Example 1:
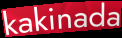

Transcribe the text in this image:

kakinada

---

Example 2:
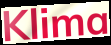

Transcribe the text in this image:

Klima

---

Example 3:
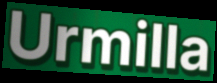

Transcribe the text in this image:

Urmilla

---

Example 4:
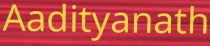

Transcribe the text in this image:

Aadityanath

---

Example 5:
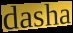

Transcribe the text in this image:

dasha